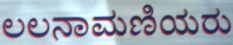
ಲಲನಾಮಣಿಯರು